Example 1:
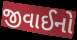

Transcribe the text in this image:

જીવાઈનો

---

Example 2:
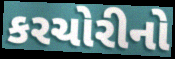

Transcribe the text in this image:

કરચોરીનો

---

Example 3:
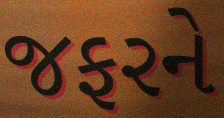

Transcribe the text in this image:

જફરને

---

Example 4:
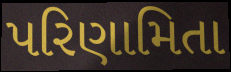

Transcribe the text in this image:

પરિણામિતા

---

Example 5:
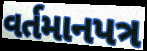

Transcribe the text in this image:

વર્તમાનપત્ર